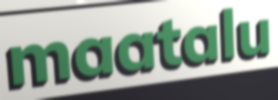
maatalu